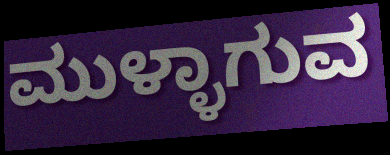
ಮುಳ್ಳಾಗುವ